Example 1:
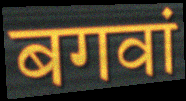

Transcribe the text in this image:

बगवां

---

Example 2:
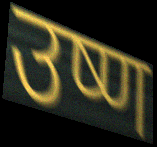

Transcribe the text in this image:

उष्ण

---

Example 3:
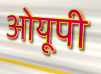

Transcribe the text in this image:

ओयूपी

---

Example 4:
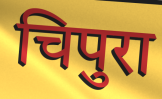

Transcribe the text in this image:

चिपुरा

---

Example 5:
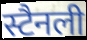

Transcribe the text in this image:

स्टैनली